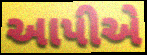
આપીએ